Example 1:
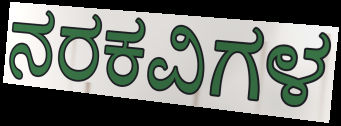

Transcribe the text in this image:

ನರಕವಿಗಳ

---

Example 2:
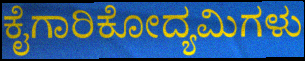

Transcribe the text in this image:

ಕೈಗಾರಿಕೋದ್ಯಮಿಗಳು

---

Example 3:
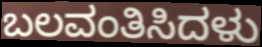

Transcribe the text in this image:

ಬಲವಂತಿಸಿದಳು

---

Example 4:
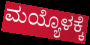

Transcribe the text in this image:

ಮಯ್ಯೊಳಕ್ಕೆ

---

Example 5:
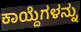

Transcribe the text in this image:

ಕಾಯ್ದೆಗಳನ್ನು